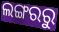
ଲଙ୍ଗରରୁ